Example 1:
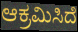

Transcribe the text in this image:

ಆಕ್ರಮಿಸಿದೆ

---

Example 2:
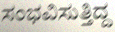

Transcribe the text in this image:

ಸಂಭವಿಸುತ್ತಿದ್ದ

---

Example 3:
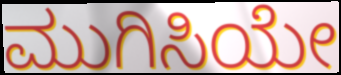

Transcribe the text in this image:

ಮುಗಿಸಿಯೇ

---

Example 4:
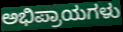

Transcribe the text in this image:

ಅಭಿಪ್ರಾಯಗಳು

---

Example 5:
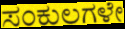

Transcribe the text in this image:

ಸಂಕುಲಗಳೇ